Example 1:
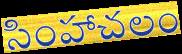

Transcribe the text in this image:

సింహాచలం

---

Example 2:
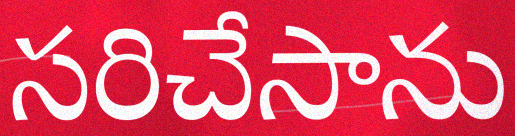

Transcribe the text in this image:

సరిచేసాను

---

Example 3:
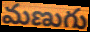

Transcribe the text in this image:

మణుగు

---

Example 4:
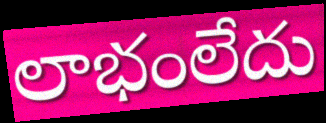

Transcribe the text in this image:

లాభంలేదు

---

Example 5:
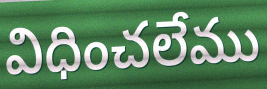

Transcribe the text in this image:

విధించలేము